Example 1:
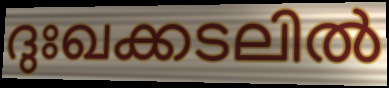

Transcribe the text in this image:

ദുഃഖക്കടലിൽ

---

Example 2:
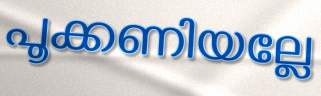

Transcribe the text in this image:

പൂക്കണിയല്ലേ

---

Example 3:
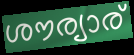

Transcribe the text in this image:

ശൗര്യാര്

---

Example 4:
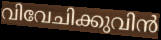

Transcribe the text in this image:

വിവേചിക്കുവിൻ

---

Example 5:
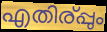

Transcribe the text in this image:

എതിര്പ്പും